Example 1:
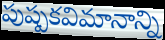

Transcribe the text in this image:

పుష్పకవిమానాన్ని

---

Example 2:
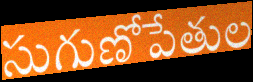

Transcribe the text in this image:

సుగుణోపేతుల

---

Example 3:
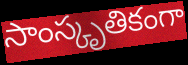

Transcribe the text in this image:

సాంస్కృతికంగా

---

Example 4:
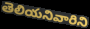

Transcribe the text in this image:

తెలియనివారిని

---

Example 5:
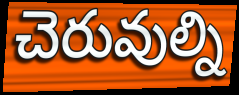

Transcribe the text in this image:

చెరువుల్ని